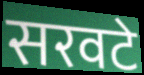
सरवटे